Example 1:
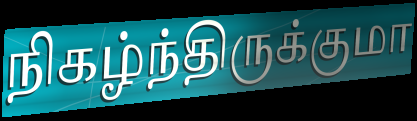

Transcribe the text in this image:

நிகழ்ந்திருக்குமா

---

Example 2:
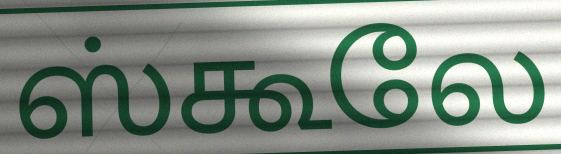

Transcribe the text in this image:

ஸ்கூலே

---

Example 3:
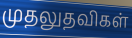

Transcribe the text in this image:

முதலுதவிகள்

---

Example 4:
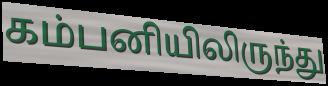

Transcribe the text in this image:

கம்பனியிலிருந்து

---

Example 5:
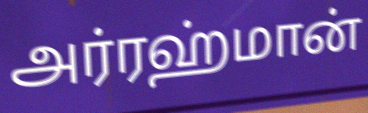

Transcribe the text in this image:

அர்ரஹ்மான்